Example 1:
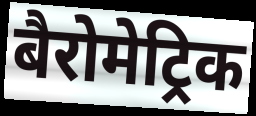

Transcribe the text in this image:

बैरोमेट्रिक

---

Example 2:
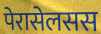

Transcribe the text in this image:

पेरासेलसस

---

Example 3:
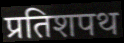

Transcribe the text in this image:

प्रतिशपथ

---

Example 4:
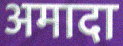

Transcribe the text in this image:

अमादा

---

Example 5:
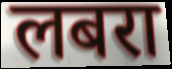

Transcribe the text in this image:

लबरा